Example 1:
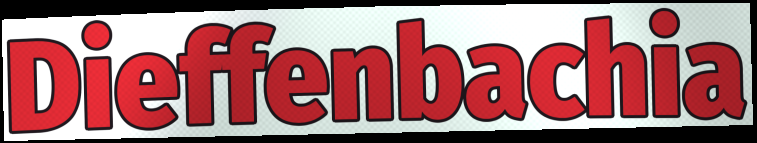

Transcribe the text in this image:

Dieffenbachia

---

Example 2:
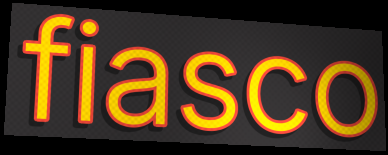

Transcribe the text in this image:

fiasco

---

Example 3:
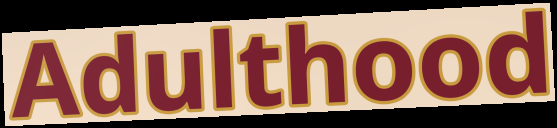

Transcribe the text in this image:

Adulthood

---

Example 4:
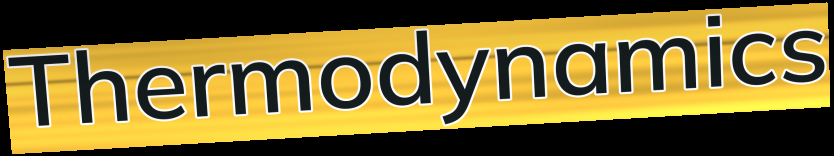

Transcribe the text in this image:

Thermodynamics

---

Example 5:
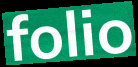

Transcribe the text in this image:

folio